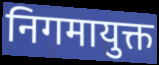
निगमायुक्त